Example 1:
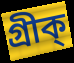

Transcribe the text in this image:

গ্ৰীক্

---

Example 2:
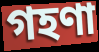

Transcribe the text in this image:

গহণা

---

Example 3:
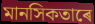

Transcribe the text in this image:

মানসিকতাৰে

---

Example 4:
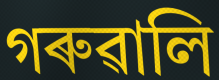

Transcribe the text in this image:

গৰুৱালি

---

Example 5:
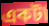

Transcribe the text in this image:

একটা